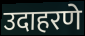
उदाहरणे